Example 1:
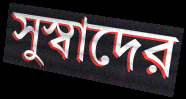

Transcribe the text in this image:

সুস্বাদের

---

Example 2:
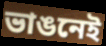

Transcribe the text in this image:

ভাঙনেই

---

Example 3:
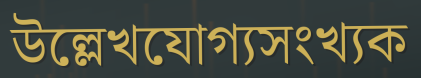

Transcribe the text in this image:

উল্লেখযোগ্যসংখ্যক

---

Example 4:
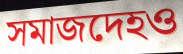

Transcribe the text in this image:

সমাজদেহও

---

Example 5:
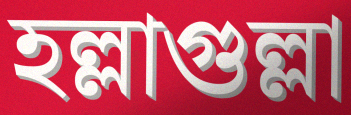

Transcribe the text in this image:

হল্লাগুল্লা